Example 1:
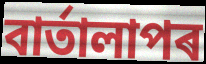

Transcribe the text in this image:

বাৰ্তালাপৰ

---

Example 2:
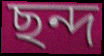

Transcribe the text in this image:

ছন্দ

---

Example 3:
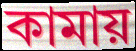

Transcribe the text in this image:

কামায়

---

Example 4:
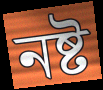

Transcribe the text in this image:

নষ্ট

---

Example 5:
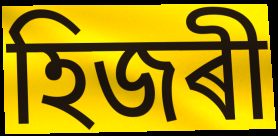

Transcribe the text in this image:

হিজৰী